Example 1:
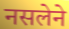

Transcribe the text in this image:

नसलेने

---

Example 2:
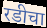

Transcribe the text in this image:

रडीचा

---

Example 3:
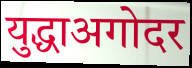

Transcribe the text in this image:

युद्धाअगोदर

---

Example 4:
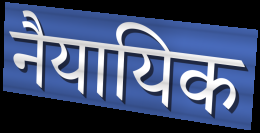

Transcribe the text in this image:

नैयायिक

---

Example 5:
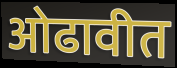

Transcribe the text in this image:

ओढावीत